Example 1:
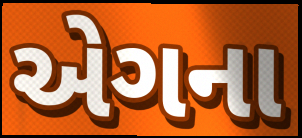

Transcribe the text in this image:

એગના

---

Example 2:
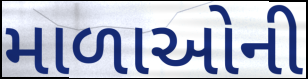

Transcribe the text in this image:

માળાઓની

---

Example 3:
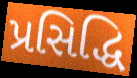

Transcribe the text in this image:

પ્રસિદ્ધિ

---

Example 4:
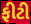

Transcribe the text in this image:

ફીટી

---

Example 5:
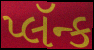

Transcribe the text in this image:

પ્લૅન્ક